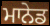
ਮਾਨੇਡ